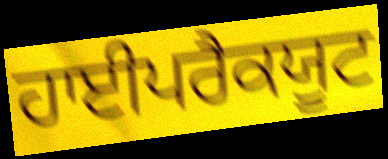
ਹਾਈਪਰੈਕਯੂਟ